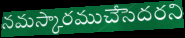
నమస్కారముచేసెదరని